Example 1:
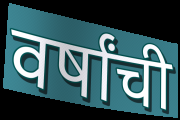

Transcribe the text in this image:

वर्षांची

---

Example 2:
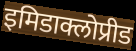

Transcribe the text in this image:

इमिडाक्लोप्रीड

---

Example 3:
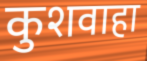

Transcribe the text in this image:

कुशवाहा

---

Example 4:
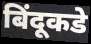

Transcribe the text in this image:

बिंदूकडे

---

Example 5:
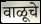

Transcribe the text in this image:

वाळूचे